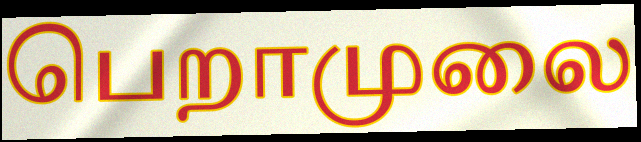
பெறாமுலை